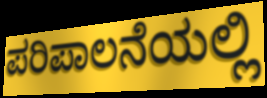
ಪರಿಪಾಲನೆಯಲ್ಲಿ